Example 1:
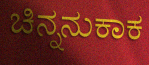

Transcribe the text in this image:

ಚಿನ್ನನುಕಾಕ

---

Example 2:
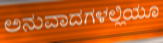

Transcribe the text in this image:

ಅನುವಾದಗಳಲ್ಲಿಯೂ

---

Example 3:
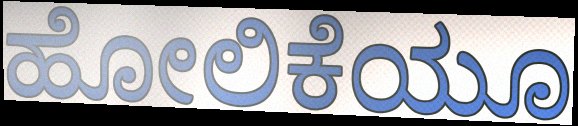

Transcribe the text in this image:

ಹೋಲಿಕೆಯೂ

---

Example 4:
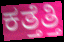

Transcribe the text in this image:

ಕತ್ತೆತ್ತಿ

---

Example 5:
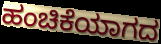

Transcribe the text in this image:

ಹಂಚಿಕೆಯಾಗದ